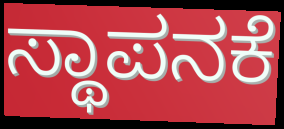
ಸ್ಥಾಪನಕೆ